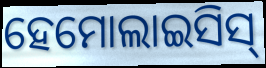
ହେମୋଲାଇସିସ୍